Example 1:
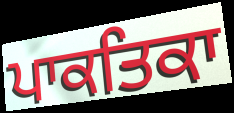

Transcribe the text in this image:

ਪਾਕਤਿਕਾ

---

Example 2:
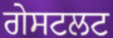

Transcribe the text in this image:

ਗੇਸਟਲਟ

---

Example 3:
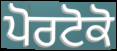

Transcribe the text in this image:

ਪੋਰਟੋਕੋ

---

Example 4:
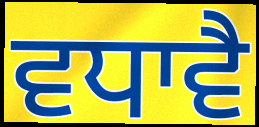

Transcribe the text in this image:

ਵਧਾਵੈ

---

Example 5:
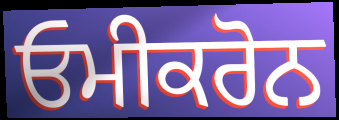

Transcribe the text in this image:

ਓਮੀਕਰੋਨ